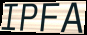
IPFA